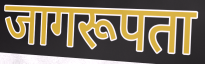
जागरूपता